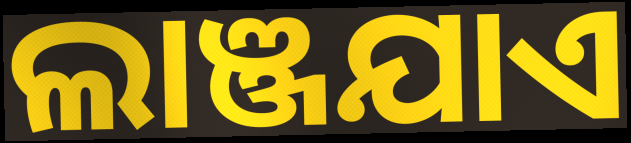
ଲାଞ୍ଜଯାଏ